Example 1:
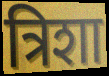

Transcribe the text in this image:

त्रिशा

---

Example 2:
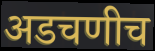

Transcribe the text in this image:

अडचणीच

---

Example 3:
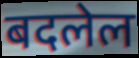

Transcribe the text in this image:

बदलेल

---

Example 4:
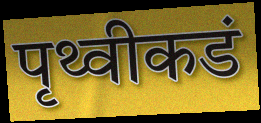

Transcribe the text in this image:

पृथ्वीकडं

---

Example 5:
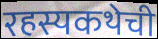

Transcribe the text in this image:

रहस्यकथेची